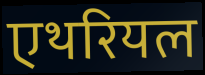
एथरियल